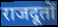
राजदूतों